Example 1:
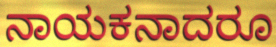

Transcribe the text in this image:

ನಾಯಕನಾದರೂ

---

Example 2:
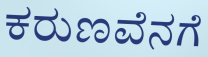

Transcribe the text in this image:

ಕರುಣವೆನಗೆ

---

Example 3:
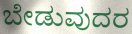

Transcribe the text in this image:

ಬೇಡುವುದರ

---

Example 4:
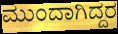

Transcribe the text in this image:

ಮುಂದಾಗಿದ್ದರ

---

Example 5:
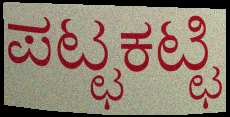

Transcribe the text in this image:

ಪಟ್ಟಕಟ್ಟಿ